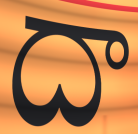
దా